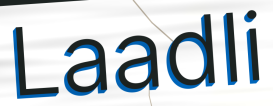
Laadli